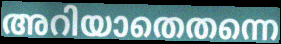
അറിയാതെതന്നെ